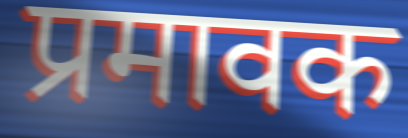
प्रमावक